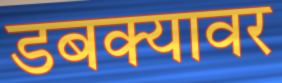
डबक्यावर